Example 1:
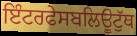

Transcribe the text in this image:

ਇੰਟਰਫੇਸਬਲਿਊਟੁੱਥ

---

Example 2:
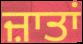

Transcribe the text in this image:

ਜ਼ਾਤਾਂ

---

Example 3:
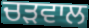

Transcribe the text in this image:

ਚੜਵਾਲ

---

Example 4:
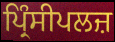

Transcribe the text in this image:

ਪ੍ਰਿੰਸੀਪਲਜ਼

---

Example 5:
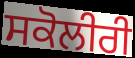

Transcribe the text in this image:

ਸਕੋਲੀਰੀ